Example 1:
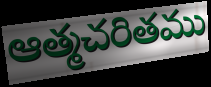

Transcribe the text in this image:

ఆత్మచరితము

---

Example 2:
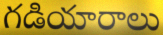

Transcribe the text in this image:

గడియారాలు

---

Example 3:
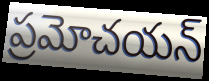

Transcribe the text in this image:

ప్రమోచయన్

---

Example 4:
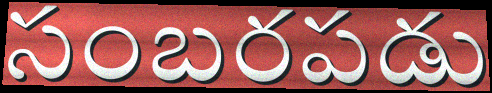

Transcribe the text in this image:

సంబరపడు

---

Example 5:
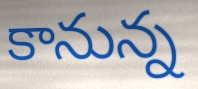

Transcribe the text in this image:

కానున్న